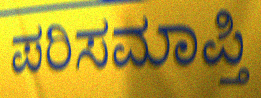
ಪರಿಸಮಾಪ್ತಿ